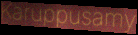
Karuppusamy